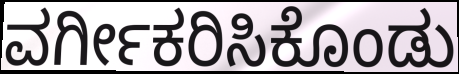
ವರ್ಗೀಕರಿಸಿಕೊಂಡು